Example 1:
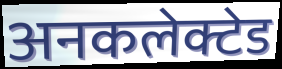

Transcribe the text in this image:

अनकलेक्टेड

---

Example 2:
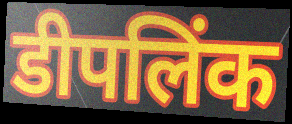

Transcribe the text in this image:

डीपलिंक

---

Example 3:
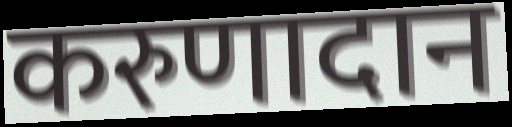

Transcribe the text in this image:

करुणादान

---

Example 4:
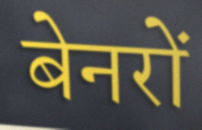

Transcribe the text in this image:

बेनरों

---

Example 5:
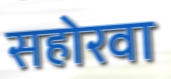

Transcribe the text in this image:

सहोरवा